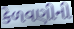
કેળવણીની